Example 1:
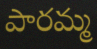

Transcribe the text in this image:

పారమ్మ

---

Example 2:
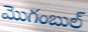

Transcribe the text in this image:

మొగంబుల్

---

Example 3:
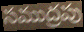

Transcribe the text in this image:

సముద్రపు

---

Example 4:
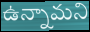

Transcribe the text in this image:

ఉన్నామని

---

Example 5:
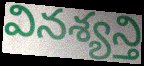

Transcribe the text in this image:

వినశ్యన్తి